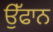
ਉੱਫਾਨ